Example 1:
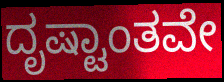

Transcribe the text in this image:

ದೃಷ್ಟಾಂತವೇ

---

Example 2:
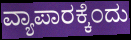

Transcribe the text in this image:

ವ್ಯಾಪಾರಕ್ಕೆಂದು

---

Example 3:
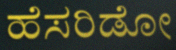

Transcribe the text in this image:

ಹೆಸರಿಡೋ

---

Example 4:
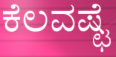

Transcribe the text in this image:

ಕೆಲವಷ್ಟೆ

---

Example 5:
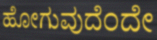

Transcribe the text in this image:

ಹೋಗುವುದೆಂದೇ